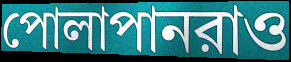
পোলাপানরাও